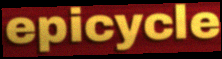
epicycle